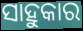
ସାହୁକାର